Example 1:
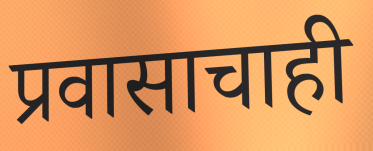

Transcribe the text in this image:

प्रवासाचाही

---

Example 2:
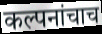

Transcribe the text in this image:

कल्पनांचाच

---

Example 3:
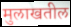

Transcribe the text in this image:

मुलाखतील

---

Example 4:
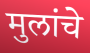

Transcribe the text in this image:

मुलांचे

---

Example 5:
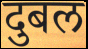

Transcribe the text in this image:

दुबल